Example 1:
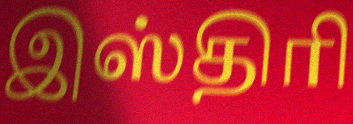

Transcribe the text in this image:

இஸ்திரி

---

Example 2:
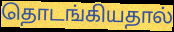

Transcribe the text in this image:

தொடங்கியதால்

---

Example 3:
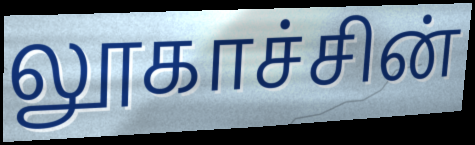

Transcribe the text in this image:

லூகாச்சின்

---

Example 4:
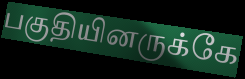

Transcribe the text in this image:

பகுதியினருக்கே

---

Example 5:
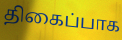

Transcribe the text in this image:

திகைப்பாக